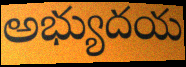
అభ్యుదయ